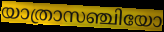
യാത്രാസഞ്ചിയോ